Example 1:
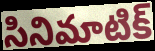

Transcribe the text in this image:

సినిమాటిక్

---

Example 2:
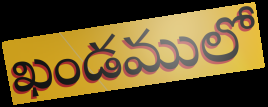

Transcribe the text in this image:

ఖండములో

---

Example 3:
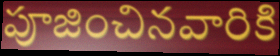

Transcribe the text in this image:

పూజించినవారికి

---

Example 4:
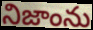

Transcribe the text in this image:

నిజాంను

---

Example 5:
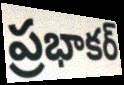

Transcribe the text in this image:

ప్రభాకర్